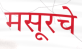
मसूरचे